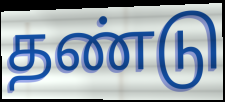
தண்டு